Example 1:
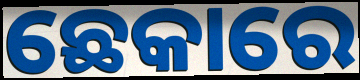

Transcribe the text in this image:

ଛେକାରେ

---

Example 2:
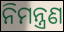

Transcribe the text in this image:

ନିମନ୍ତ୍ରଣ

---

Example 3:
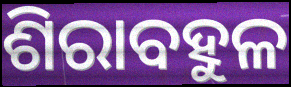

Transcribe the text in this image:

ଶିରାବହୁଳ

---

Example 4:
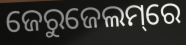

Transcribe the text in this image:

ଜେରୁଜେଲମ୍‌ରେ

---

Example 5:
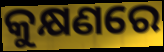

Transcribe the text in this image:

କୁକ୍ଷଣରେ